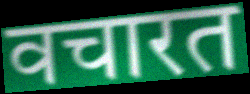
वचारत